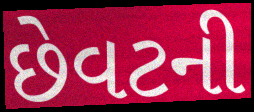
છેવટની